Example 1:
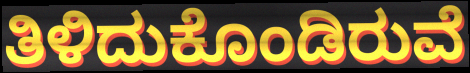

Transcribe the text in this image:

ತಿಳಿದುಕೊಂಡಿರುವೆ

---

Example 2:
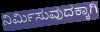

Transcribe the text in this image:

ನಿರ್ಮಿಸುವುದಕ್ಕಾಗಿ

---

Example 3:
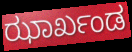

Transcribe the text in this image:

ಝಾರ್ಖಂಡ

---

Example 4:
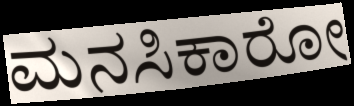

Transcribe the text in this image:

ಮನಸಿಕಾರೋ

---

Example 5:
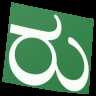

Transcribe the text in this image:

ರು